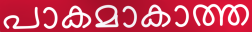
പാകമാകാത്ത